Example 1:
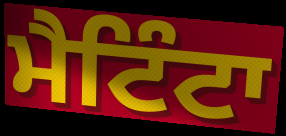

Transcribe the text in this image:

ਮੈਟਿੰਟਾ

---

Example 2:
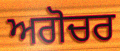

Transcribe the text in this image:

ਅਗੋਚਰ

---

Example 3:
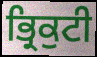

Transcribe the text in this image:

ਭ੍ਰਿਕੁਟੀ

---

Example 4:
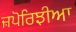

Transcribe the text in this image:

ਜ਼ਪੋਰਿਝੀਆ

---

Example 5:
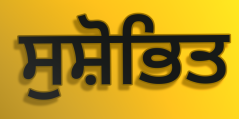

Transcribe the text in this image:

ਸੁਸ਼ੋਭਿਤ